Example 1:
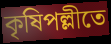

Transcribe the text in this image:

কৃষিপল্লীতে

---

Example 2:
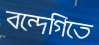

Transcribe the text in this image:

বন্দেগিতে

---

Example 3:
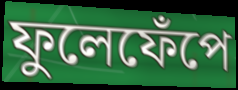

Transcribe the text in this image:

ফুলেফেঁপে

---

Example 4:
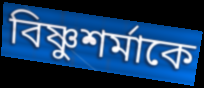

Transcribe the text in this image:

বিষ্ণুশর্মাকে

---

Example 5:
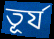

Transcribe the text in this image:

তূর্য